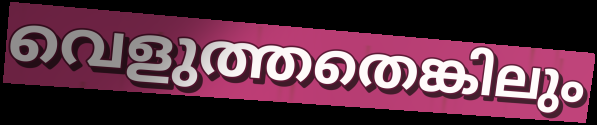
വെളുത്തതെങ്കിലും